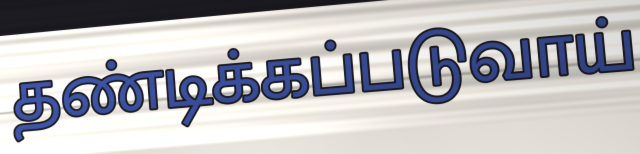
தண்டிக்கப்படுவாய்